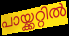
പായ്ക്കറ്റിൽ